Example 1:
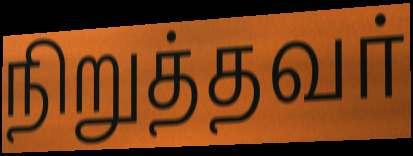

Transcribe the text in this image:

நிறுத்தவர்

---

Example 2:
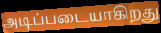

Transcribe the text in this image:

அடிப்படையாகிறது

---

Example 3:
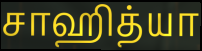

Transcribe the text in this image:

சாஹித்யா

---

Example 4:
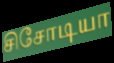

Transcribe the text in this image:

சிசோடியா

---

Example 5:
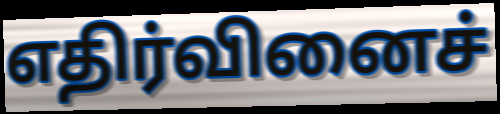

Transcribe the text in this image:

எதிர்வினைச்